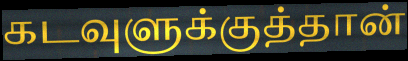
கடவுளுக்குத்தான்